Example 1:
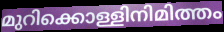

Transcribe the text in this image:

മുറിക്കൊള്ളിനിമിത്തം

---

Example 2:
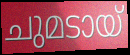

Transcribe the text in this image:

ചുമടായ്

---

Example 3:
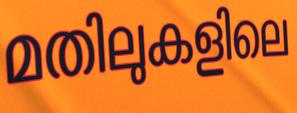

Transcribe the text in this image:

മതിലുകളിലെ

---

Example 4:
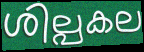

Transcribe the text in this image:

ശില്പകല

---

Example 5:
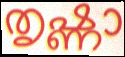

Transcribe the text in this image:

തൃഷ്ണാ